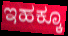
ಇಹಕ್ಕೂ